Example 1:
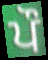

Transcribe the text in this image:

ਪੌ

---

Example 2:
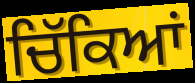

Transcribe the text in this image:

ਚਿੱਕਿਆਂ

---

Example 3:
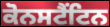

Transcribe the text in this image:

ਕੋਨਸਟੈਂਟਿਨ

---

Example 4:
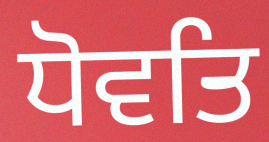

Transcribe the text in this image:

ਧੋਵਤਿ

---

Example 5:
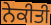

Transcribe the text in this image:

ਨੇਕੀਤੀ